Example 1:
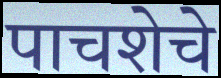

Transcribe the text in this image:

पाचशेचे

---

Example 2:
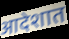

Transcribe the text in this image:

आदेशात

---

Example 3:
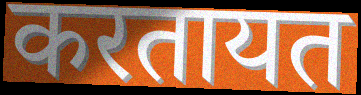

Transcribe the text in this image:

करतायत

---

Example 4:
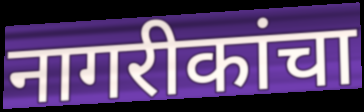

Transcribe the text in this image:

नागरीकांचा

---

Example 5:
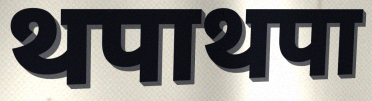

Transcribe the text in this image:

थपाथपा